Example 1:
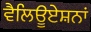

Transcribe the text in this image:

ਵੈਲਿਊਏਸ਼ਨਾਂ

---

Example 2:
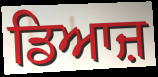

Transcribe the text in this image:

ਡਿਆਜ਼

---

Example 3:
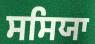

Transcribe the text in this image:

ਸਸਿਯਾ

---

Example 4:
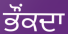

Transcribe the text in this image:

ਭੌਂਕਦਾ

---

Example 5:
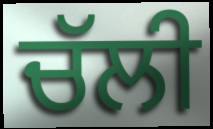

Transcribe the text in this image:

ਚੱਲੀ